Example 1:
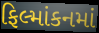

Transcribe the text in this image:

ફિલ્માંકનમાં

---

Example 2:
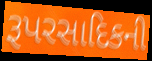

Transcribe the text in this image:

રૂપરસાદિકની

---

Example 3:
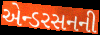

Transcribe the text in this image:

એન્ડરસનની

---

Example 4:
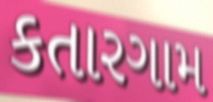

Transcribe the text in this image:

કતારગામ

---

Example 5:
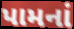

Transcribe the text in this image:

પામનાં